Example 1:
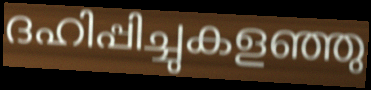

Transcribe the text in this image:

ദഹിപ്പിച്ചുകളഞ്ഞു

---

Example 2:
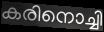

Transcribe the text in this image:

കരിനൊച്ചി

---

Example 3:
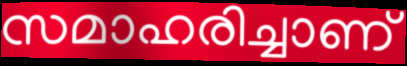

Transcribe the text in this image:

സമാഹരിച്ചാണ്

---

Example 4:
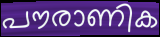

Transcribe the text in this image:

പൗരാണിക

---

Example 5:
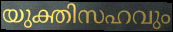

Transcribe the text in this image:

യുക്തിസഹവും